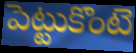
పెట్టుకొంటె